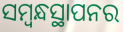
ସମ୍ବନ୍ଧସ୍ଥାପନର